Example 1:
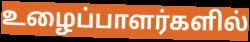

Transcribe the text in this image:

உழைப்பாளர்களில்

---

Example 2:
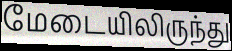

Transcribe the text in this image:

மேடையிலிருந்து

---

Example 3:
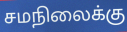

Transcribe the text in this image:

சமநிலைக்கு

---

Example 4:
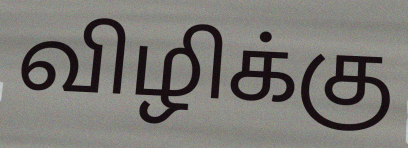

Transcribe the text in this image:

விழிக்கு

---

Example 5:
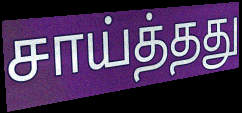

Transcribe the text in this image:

சாய்த்தது